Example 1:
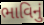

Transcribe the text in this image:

ભાવિનું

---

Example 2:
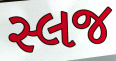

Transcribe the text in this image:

સ્લજ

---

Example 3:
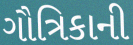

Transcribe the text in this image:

ગૌત્રિકાની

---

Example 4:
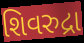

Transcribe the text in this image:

શિવરુદ્રા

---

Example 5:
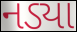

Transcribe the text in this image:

નડ્યા